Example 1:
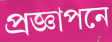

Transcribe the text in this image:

প্রজ্ঞাপনে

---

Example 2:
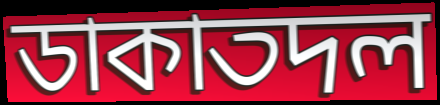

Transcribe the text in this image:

ডাকাতদল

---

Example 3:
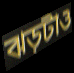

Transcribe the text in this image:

ঝড়টাও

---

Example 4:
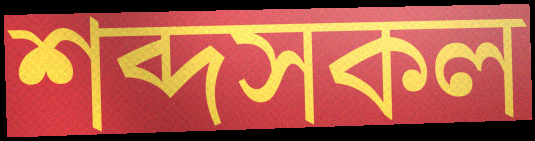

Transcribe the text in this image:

শব্দসকল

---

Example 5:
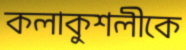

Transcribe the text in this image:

কলাকুশলীকে